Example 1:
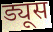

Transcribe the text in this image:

ड्यूस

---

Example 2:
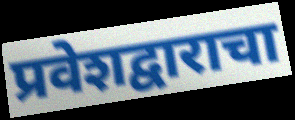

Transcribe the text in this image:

प्रवेशद्वाराचा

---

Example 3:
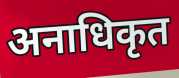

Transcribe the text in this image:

अनाधिकृत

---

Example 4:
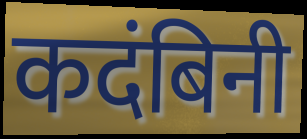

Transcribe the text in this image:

कदंबिनी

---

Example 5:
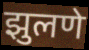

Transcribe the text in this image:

झुलणे